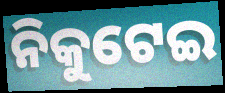
ନିକୁଟେଇ